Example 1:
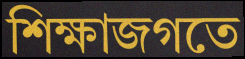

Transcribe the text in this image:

শিক্ষাজগতে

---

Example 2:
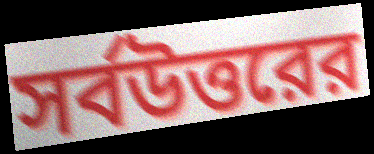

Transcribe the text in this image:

সর্বউত্তরের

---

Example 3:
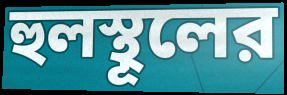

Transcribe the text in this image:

হুলস্থূলের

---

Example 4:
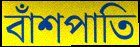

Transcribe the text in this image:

বাঁশপাতি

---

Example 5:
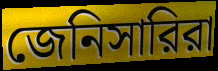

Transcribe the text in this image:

জেনিসারিরা